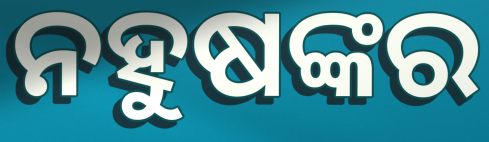
ନହୁଷଙ୍କର